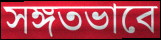
সঙ্গতভাবে